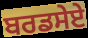
ਬਰਡਸੇਏ